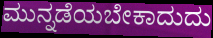
ಮುನ್ನಡೆಯಬೇಕಾದುದು